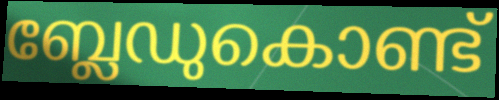
ബ്ലേഡുകൊണ്ട്